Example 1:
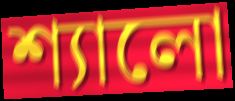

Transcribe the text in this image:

শ্যালো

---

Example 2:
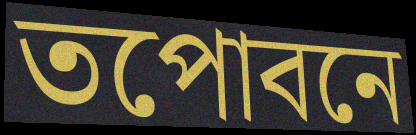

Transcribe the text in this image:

তপোবনে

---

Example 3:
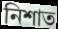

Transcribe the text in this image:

নিশাত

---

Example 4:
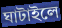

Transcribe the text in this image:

ঘাটাইলে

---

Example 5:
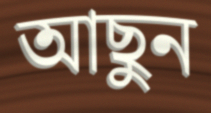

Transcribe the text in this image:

আছুন